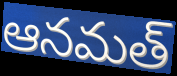
ఆనమత్